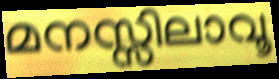
മനസ്സിലാവൂ